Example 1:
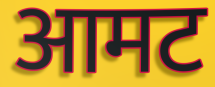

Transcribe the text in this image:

आमट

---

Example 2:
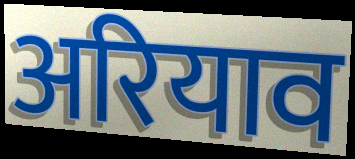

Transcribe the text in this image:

अरियाव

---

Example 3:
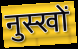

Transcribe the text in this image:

नुस्खों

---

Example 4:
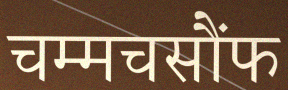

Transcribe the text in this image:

चम्मचसौंफ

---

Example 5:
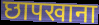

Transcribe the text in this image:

छापखाना